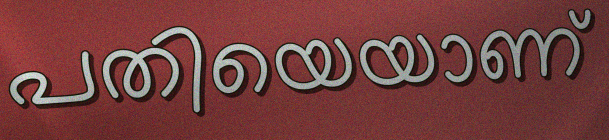
പതിയെയാണ്